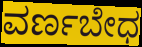
ವರ್ಣಬೇಧ